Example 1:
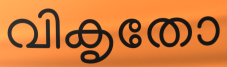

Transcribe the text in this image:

വികൃതോ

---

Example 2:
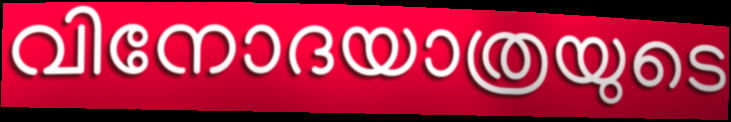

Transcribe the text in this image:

വിനോദയാത്രയുടെ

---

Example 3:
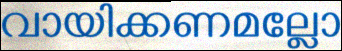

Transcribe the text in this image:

വായിക്കണമല്ലോ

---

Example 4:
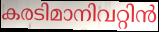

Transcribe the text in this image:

കരടിമാനിവറ്റിൻ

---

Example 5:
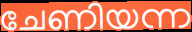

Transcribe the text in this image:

ചേണിയന്ന